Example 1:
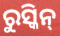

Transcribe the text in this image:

ରୁସ୍କିନ୍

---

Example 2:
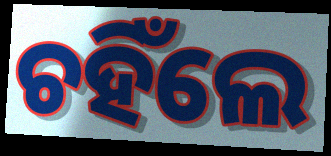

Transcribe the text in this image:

ଚହିଁଲେ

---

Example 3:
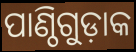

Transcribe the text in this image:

ପାଣ୍ଠିଗୁଡ଼ାକ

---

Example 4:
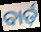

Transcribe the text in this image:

ବାର୍ଡ଼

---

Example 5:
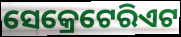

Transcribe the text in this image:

ସେକ୍ରେଟେରିଏଟ